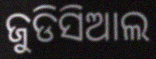
ଜୁଡିସିଆଲ